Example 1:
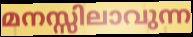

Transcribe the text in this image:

മനസ്സിലാവുന്ന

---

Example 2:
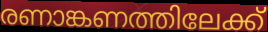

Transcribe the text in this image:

രണാങ്കണത്തിലേക്ക്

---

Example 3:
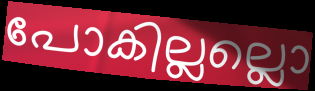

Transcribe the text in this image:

പോകില്ലല്ലൊ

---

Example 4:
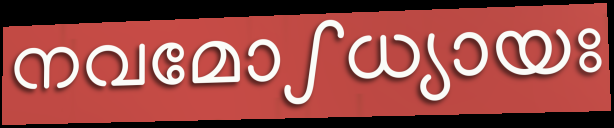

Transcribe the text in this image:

നവമോഽധ്യായഃ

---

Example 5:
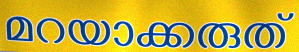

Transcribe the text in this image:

മറയാക്കരുത്